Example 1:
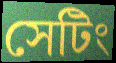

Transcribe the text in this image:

সেটিং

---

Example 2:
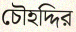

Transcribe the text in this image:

চৌহদ্দির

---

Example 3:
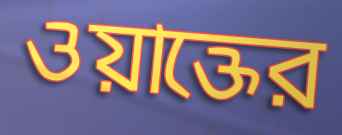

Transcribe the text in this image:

ওয়াক্তের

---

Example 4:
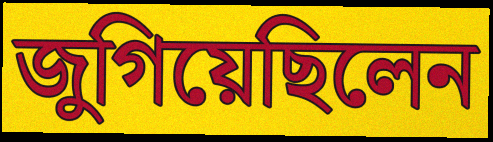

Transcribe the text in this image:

জুগিয়েছিলেন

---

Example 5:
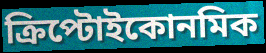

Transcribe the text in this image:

ক্রিপ্টোইকোনমিক